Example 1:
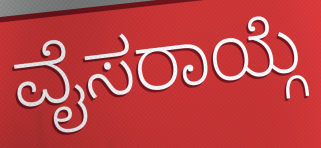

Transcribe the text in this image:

ವೈಸರಾಯ್ಗೆ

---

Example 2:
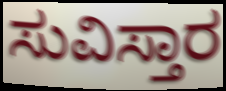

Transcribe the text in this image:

ಸುವಿಸ್ತಾರ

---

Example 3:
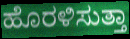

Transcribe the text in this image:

ಹೊರಳಿಸುತ್ತಾ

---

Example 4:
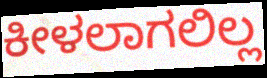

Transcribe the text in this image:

ಕೀಳಲಾಗಲಿಲ್ಲ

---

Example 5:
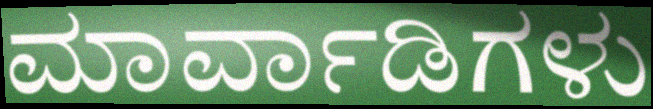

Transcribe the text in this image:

ಮಾರ್ವಾಡಿಗಳು